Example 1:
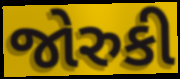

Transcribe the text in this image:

જોરુકી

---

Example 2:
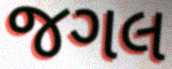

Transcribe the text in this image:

જગલ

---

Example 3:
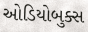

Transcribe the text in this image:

ઓડિયોબુક્સ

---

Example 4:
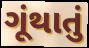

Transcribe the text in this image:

ગૂંથાતું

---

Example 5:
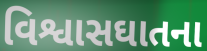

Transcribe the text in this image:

વિશ્વાસઘાતના